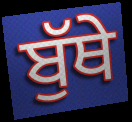
ਬੁੱਥੇ